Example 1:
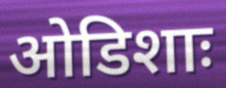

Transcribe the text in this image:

ओडिशाः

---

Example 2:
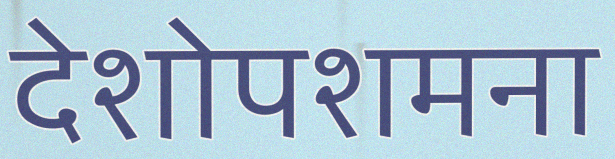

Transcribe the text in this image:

देशोपशमना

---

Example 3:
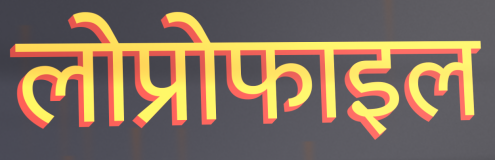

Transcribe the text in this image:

लोप्रोफाइल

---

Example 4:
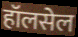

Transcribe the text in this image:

हॉलसेल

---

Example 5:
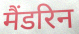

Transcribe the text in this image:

मैंडरिन